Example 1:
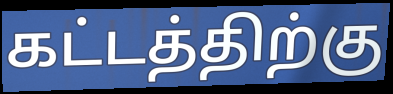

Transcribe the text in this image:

கட்டத்திற்கு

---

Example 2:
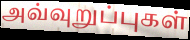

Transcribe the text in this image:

அவ்வுறுப்புகள்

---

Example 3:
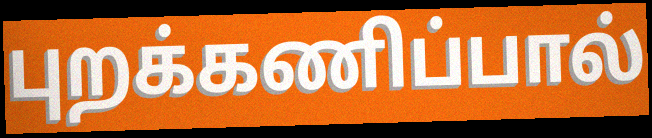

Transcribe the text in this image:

புறக்கணிப்பால்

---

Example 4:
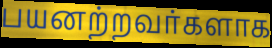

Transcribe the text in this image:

பயனற்றவர்களாக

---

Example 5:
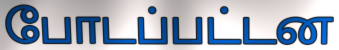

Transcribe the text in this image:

போடப்பட்டன